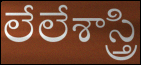
లేలేశాస్త్రి